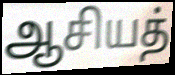
ஆசியத்